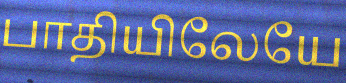
பாதியிலேயே